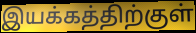
இயக்கத்திற்குள்